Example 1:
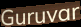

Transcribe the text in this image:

Guruvar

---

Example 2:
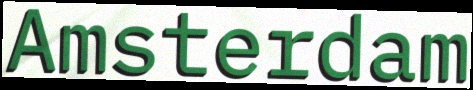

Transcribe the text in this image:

Amsterdam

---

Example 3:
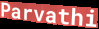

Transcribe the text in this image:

Parvathi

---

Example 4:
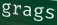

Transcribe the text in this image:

grags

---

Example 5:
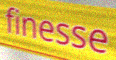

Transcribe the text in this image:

finesse